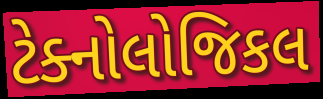
ટેક્નોલોજિકલ